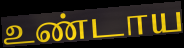
உண்டாய